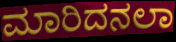
ಮಾರಿದನಲಾ